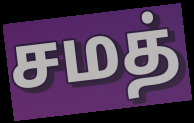
சமத்